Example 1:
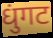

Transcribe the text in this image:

धुंगट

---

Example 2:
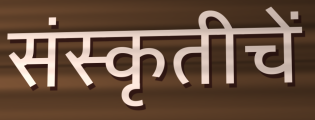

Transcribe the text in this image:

संस्कृतीचें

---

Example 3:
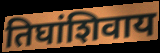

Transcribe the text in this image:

तिघांशिवाय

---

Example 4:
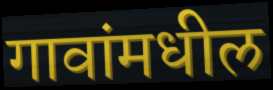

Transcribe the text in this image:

गावांमधील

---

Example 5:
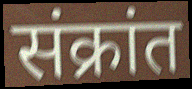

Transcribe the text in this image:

संक्रांत